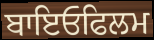
ਬਾਇਓਫਿਲਮ